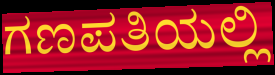
ಗಣಪತಿಯಲ್ಲಿ